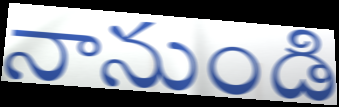
నానుండి